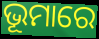
ଭୂମାରେ